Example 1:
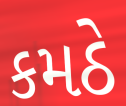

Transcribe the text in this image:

કમઠે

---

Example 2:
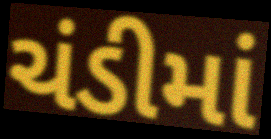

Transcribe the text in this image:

ચંડીમાં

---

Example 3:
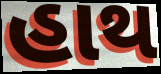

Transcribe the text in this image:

હાથ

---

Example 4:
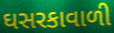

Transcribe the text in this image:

ઘસરકાવાળી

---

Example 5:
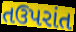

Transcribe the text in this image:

તઉપરાંત